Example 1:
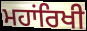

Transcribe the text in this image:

ਮਹਾਂਰਿਖੀ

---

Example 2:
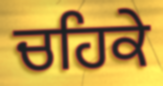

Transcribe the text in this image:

ਚਹਿਕੇ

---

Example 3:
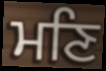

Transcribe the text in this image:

ਮਣਿ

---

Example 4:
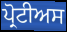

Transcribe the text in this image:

ਪ੍ਰੋਟੀਅਸ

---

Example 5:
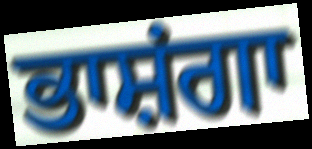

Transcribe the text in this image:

ਭਾਸ਼ਂਗਾ